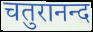
चतुरानन्द